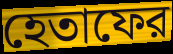
হেতাফের